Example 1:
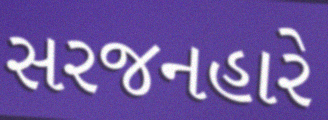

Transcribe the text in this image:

સરજનહારે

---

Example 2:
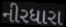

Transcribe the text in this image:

નીરધારા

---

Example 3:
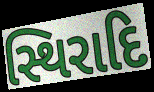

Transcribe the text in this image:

સ્થિરાદિ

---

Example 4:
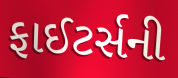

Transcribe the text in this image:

ફાઈટર્સની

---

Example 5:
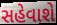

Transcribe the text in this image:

સહેવાશે